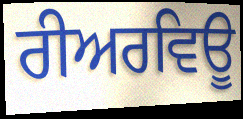
ਰੀਅਰਵਿਊ